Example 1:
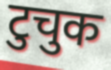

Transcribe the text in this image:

टुचुक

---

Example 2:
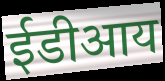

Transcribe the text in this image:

ईडीआय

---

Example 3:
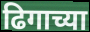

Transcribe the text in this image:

ढिगाच्या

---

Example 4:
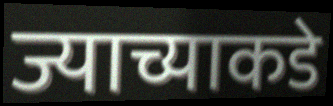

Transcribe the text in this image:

ज्याच्याकडे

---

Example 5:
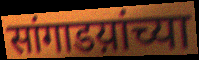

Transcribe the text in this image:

सांगाडय़ांच्या